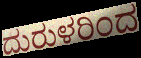
ದುರುಳರಿಂದ